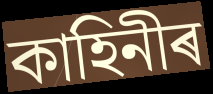
কাহিনীৰ